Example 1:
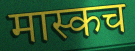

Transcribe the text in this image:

मास्कच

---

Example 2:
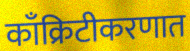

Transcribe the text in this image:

काँक्रिटीकरणात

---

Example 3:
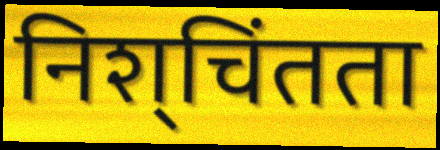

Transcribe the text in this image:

निश्चिंतता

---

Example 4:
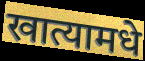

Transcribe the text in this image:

खात्यामधे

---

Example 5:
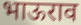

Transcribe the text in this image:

भाऊराव